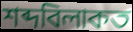
শব্দবিলাকত